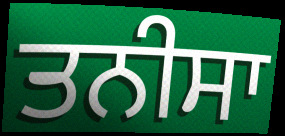
ਤਨੀਸਾ